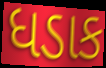
ધડાક